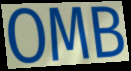
OMB